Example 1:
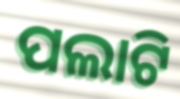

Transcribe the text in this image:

ପଲାଟି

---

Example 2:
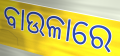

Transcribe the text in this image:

ବାଉଳାରେ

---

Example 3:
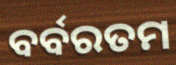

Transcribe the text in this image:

ବର୍ବରତମ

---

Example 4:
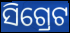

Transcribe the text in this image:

ସିଗ୍ରେଟ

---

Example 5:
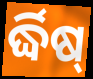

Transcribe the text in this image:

ର୍ଦ୍ଧିଷ୍